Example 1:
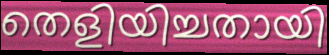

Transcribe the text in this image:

തെളിയിച്ചതായി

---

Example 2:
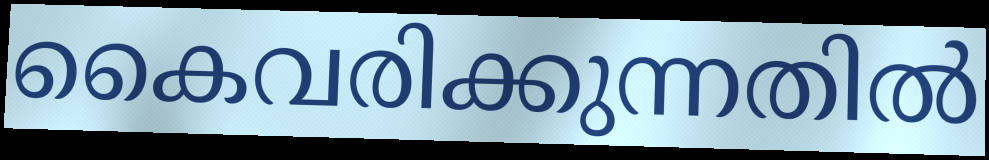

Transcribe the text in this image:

കൈവരിക്കുന്നതിൽ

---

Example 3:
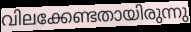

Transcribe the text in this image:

വിലക്കേണ്ടതായിരുന്നു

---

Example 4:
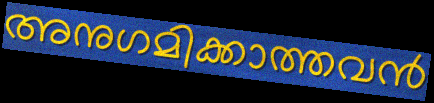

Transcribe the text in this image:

അനുഗമിക്കാത്തവൻ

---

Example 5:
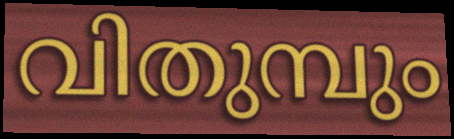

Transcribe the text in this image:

വിതുമ്പും